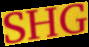
SHG